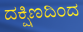
ದಕ್ಷಿಣದಿಂದ